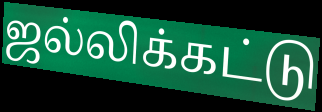
ஜல்லிக்கட்டு